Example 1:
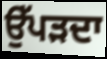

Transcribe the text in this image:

ਉੱਪੜਦਾ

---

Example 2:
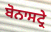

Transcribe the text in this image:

ਬੋਨਾਸਟ੍ਰੇ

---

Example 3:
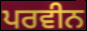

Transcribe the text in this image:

ਪਰਵੀਨ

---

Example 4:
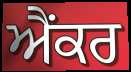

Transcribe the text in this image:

ਐਂਕਰ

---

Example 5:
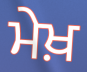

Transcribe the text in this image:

ਮੇਖ਼